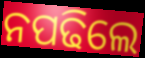
ନପଢିଲେ